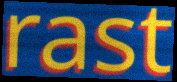
rast